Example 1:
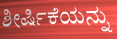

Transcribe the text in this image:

ಶೀರ್ಷಿಕೆಯನ್ನು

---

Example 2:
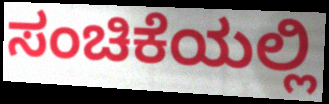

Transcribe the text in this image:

ಸಂಚಿಕೆಯಲ್ಲಿ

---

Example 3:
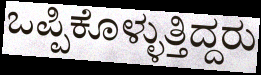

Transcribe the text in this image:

ಒಪ್ಪಿಕೊಳ್ಳುತ್ತಿದ್ದರು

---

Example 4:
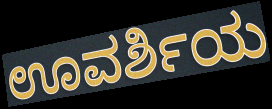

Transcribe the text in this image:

ಊವರ್ಶಿಯ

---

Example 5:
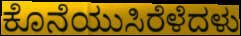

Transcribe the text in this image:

ಕೊನೆಯುಸಿರೆಳೆದಳು